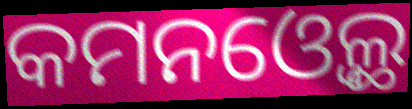
କମନଓ୍ବେଲ୍ଥ